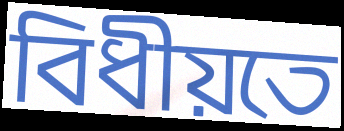
বিধীয়তে